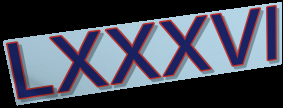
LXXXVI